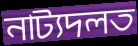
নাট্যদলত